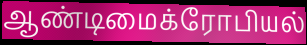
ஆண்டிமைக்ரோபியல்